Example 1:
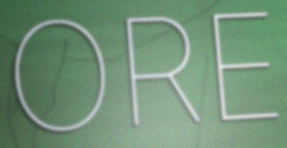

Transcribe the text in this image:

ORE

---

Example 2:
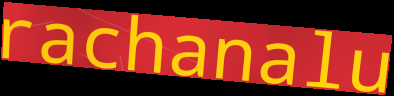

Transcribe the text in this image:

rachanalu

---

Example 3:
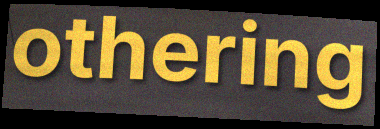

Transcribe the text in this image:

othering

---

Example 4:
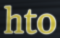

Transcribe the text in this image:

hto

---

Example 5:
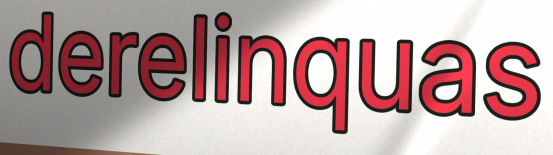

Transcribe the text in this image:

derelinquas